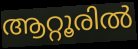
ആറ്റൂരിൽ